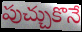
పుచ్చుకొనే